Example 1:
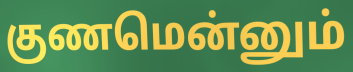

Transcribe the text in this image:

குணமென்னும்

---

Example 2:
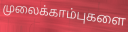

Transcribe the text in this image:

முலைக்காம்புகளை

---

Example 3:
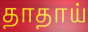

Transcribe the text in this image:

தாதாய்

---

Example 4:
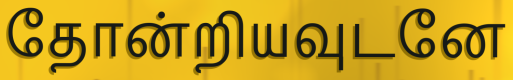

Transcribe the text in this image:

தோன்றியவுடனே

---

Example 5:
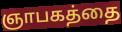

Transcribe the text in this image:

ஞாபகத்தை